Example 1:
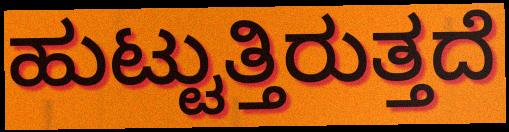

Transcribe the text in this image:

ಹುಟ್ಟುತ್ತಿರುತ್ತದೆ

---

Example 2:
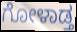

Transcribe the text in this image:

ಗೋಳಾಡ್ತ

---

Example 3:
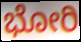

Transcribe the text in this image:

ಭೋರಿ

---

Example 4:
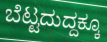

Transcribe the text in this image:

ಬೆಟ್ಟದುದ್ದಕ್ಕೂ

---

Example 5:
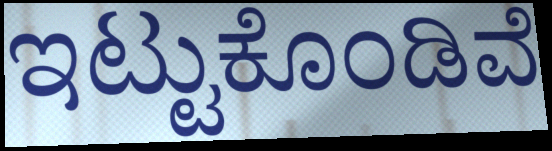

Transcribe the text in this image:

ಇಟ್ಟುಕೊಂಡಿವೆ